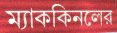
ম্যাককিনলের